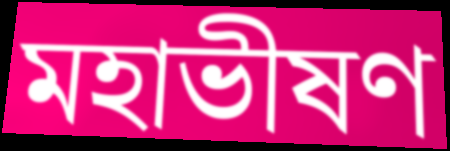
মহাভীষণ